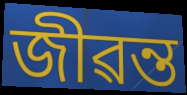
জীৱন্ত